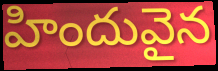
హిందువైన